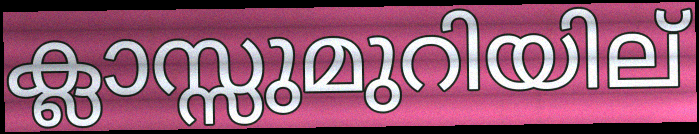
ക്ലാസ്സുമുറിയില്